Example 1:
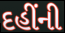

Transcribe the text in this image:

દહીંની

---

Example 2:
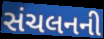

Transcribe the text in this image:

સંચલનની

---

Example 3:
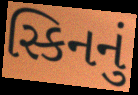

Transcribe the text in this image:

સ્કિનનું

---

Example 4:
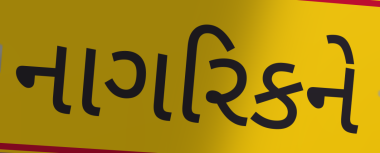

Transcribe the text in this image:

નાગરિકને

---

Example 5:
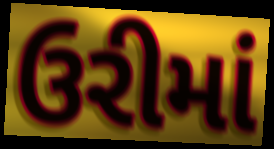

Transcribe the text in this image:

ઉરીમાં